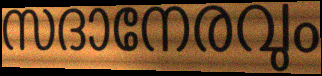
സദാനേരവും